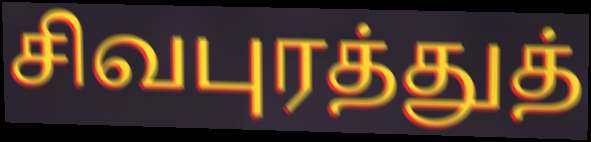
சிவபுரத்துத்